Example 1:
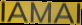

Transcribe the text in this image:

IAMAI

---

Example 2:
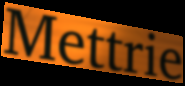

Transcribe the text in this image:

Mettrie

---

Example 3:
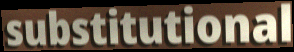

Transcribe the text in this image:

substitutional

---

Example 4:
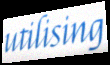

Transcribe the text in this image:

utilising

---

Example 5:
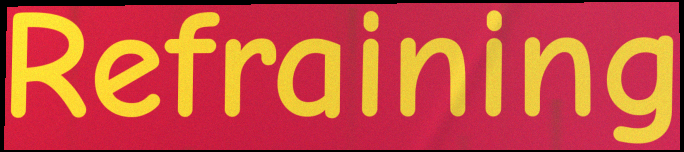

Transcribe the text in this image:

Refraining